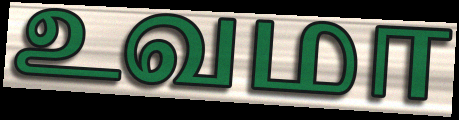
உவமா